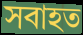
সবাহত